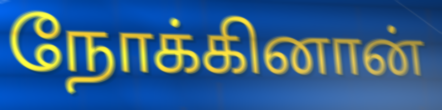
நோக்கினான்